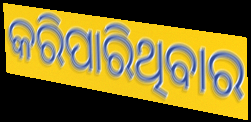
କରିପାରିଥିବାର